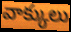
వాక్కులు